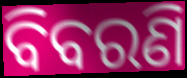
ବିବରଣି